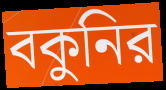
বকুনির